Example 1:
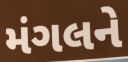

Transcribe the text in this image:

મંગલને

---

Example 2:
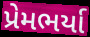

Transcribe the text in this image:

પ્રેમભર્યા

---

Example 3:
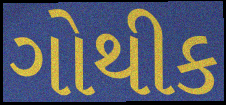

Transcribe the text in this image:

ગોથીક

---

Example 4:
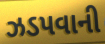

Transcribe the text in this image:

ઝડપવાની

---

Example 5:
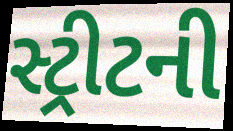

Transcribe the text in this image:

સ્ટ્રીટની